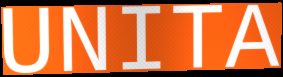
UNITA